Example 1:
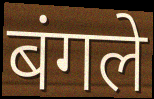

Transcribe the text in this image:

बंगले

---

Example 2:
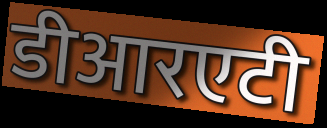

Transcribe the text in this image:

डीआरएटी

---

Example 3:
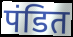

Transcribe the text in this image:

पंडित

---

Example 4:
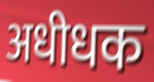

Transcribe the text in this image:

अधीधक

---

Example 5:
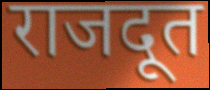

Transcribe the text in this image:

राजदूत